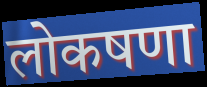
लोकषणा